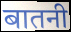
बातनी